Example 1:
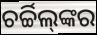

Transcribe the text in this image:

ଚର୍ଚ୍ଚିଲ୍‌ଙ୍କର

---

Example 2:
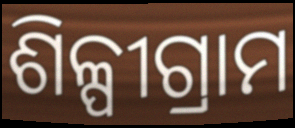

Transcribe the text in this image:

ଶିଳ୍ପୀଗ୍ରାମ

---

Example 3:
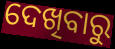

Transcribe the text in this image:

ଦେଖିବାରୁ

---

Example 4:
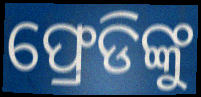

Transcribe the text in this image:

ଫ୍ରେଡିଙ୍କୁ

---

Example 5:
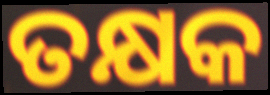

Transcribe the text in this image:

ତକ୍ଷକ